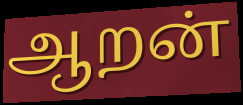
ஆறன்